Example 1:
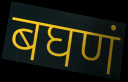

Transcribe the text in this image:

बघणं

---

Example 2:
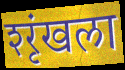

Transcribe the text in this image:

श्रृंखला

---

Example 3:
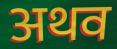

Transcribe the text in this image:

अथव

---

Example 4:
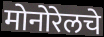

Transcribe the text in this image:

मोनोरेलचे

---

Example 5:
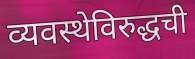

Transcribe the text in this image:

व्यवस्थेविरुद्धची